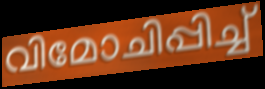
വിമോചിപ്പിച്ച്